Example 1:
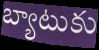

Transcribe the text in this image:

బ్యాటుకు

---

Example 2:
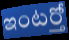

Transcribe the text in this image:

ఇంటర్తో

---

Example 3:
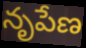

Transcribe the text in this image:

నృపేణ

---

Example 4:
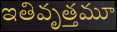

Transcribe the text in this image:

ఇతివృత్తమూ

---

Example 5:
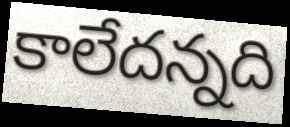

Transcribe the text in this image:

కాలేదన్నది